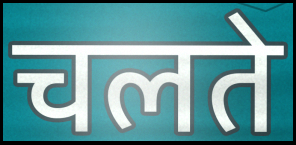
चलते